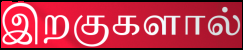
இறகுகளால்